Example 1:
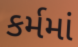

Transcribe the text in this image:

કર્મમાં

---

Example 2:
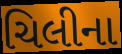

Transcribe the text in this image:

ચિલીના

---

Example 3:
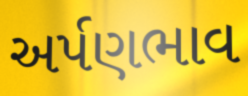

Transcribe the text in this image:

અર્પણભાવ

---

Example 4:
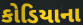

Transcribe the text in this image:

કોડિયાના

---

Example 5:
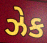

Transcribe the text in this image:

ઝેક